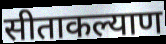
सीताकल्याण